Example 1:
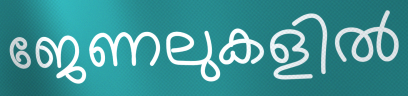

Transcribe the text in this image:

ജേണലുകളിൽ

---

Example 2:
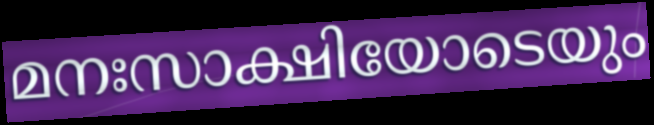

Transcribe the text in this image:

മനഃസാക്ഷിയോടെയും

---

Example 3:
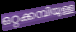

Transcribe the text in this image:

ഒറ്റക്കമ്പിയുള്ള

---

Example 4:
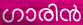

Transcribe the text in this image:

ഗാരിൻ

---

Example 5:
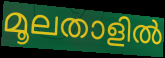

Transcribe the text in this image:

മൂലതാളിൽ